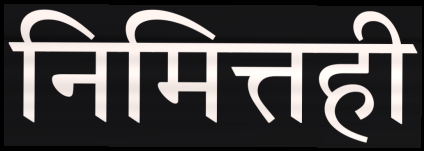
निमित्तही